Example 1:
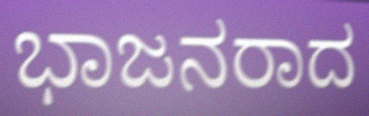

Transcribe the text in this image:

ಭಾಜನರಾದ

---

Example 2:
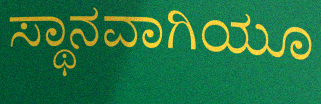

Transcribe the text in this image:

ಸ್ಥಾನವಾಗಿಯೂ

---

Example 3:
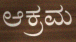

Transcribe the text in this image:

ಆಕ್ರಮ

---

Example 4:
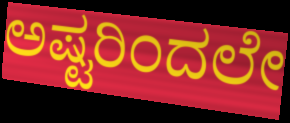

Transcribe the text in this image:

ಅಷ್ಟರಿಂದಲೇ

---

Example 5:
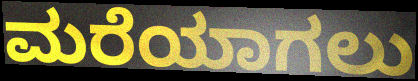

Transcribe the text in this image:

ಮರೆಯಾಗಲು